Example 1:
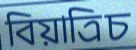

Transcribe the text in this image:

বিয়াত্রিচ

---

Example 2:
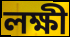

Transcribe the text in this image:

লক্ষী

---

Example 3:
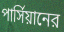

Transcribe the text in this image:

পার্সিয়ানের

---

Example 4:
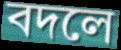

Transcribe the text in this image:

বদলে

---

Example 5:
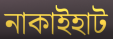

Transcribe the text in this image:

নাকাইহাট